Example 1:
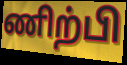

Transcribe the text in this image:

ணிற்பி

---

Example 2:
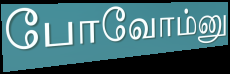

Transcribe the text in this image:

போவோம்னு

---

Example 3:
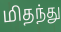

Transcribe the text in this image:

மிதந்து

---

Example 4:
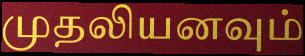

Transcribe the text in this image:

முதலியனவும்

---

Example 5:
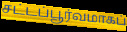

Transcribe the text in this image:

சட்டப்பூர்வமாகப்